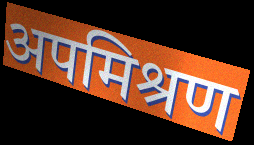
अपमिश्रण